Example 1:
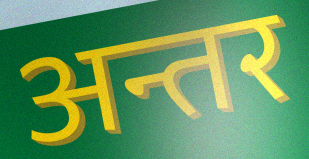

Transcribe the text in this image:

अन्तर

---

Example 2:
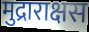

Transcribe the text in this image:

मुद्राराक्षस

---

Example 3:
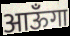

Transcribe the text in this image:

आऊँगा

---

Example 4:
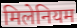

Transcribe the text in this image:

मिलेनियम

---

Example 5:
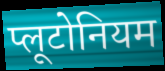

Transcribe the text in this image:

प्लूटोनियम